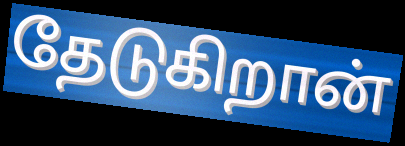
தேடுகிறான்